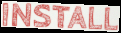
INSTALL